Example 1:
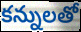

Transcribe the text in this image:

కన్నులతో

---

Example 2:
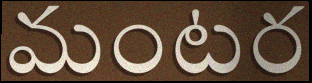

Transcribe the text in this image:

మంటర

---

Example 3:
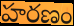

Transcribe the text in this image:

హరణం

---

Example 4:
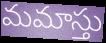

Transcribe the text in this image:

మమాస్తు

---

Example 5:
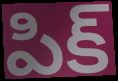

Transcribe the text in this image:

పిక్